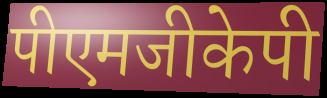
पीएमजीकेपी